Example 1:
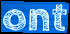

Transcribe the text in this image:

ont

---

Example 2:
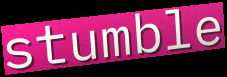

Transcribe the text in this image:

stumble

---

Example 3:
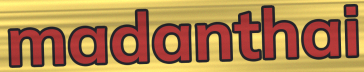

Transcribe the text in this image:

madanthai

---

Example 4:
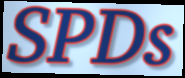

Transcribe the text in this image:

SPDs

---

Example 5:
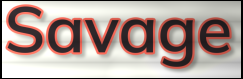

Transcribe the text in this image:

Savage